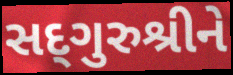
સદ્‌ગુરુશ્રીને